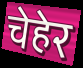
चेहेर